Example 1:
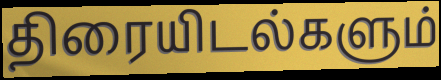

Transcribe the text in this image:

திரையிடல்களும்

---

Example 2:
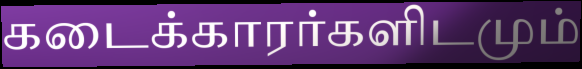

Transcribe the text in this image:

கடைக்காரர்களிடமும்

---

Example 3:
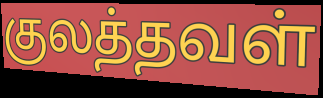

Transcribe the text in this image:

குலத்தவள்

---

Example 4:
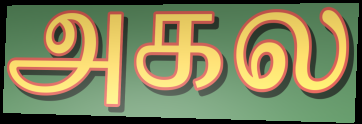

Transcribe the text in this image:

அகல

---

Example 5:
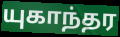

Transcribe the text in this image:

யுகாந்தர